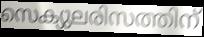
സെക്യുലരിസത്തിന്